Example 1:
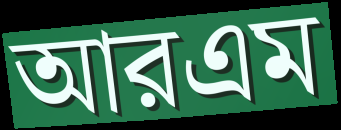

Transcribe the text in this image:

আরএম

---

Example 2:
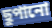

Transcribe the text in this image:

ছুপানো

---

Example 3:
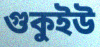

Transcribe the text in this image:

গুকুইউ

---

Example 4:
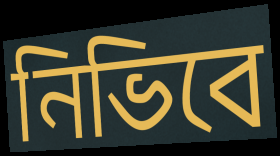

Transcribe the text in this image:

নিভিবে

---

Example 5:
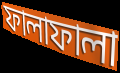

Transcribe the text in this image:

ফালাফালা